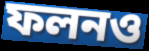
ফলনও